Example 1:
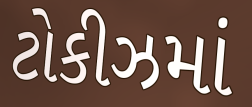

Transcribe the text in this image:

ટોકીઝમાં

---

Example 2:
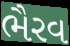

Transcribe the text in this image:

ભૈરવ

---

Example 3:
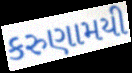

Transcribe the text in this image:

કરુણામયી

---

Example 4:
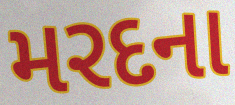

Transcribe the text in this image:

મરદના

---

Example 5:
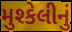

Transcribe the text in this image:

મુશ્કેલીનું